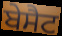
ਬੇਸੈਟ